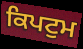
ਕਿਪਟੁਮ